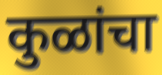
कुळांचा